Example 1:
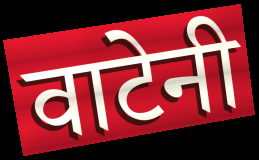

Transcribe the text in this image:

वाटेनी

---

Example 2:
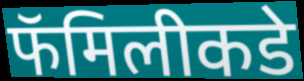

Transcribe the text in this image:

फॅमिलीकडे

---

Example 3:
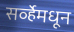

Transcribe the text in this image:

सर्व्हेमधून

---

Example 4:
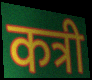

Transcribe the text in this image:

कत्री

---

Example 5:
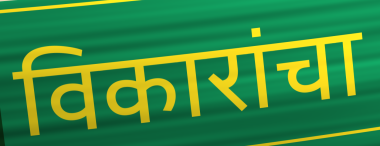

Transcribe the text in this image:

विकारांचा